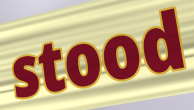
stood